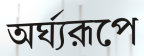
অর্ঘ্যরূপে